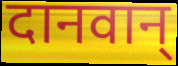
दानवान्